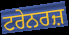
ਟਰੇਨਰਜ਼